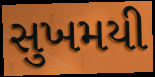
સુખમયી